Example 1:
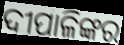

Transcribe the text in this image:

ଦୀପାଳିଙ୍କର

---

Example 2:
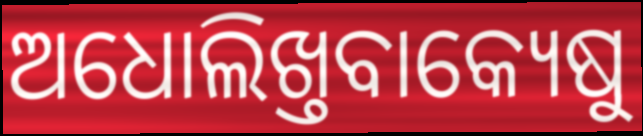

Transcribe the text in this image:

ଅଧୋଲିଖ୍ତବାକ୍ୟେଷୁ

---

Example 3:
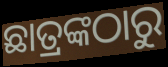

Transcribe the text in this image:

ଛାତ୍ରଙ୍କଠାରୁ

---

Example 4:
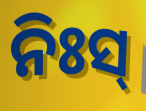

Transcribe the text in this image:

ନିଃସ୍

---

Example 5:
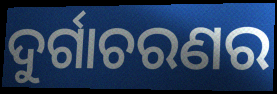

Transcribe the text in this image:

ଦୁର୍ଗାଚରଣର